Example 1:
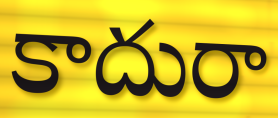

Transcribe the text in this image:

కాదురా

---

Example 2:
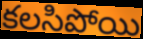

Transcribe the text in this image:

కలసిపోయి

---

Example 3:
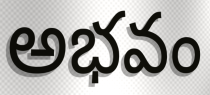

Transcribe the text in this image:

అభవం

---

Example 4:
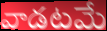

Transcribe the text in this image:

వాడటమే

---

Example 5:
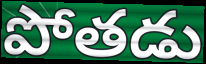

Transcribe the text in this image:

పోతడు